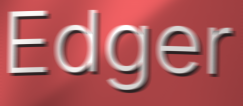
Edger